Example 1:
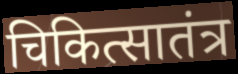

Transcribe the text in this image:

चिकित्सातंत्र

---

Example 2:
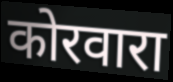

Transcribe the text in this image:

कोरवारा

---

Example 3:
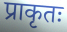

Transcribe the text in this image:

प्राकृतः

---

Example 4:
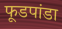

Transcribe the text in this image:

फूडपांडा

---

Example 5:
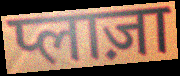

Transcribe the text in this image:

प्लाज़ा